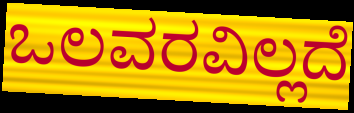
ಒಲವರವಿಲ್ಲದೆ